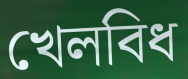
খেলবিধ